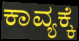
ಕಾವ್ಯಕ್ಕೆ